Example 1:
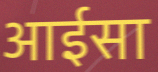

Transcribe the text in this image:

आईसा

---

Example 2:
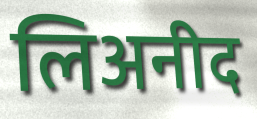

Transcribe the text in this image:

लिअनीद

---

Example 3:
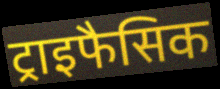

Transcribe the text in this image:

ट्राइफैसिक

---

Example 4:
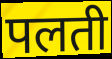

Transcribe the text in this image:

पलती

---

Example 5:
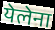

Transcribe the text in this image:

येलेना